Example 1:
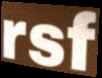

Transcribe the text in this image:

rsf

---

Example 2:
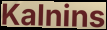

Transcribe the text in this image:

Kalnins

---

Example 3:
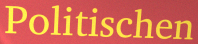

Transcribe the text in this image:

Politischen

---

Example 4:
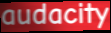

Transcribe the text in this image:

audacity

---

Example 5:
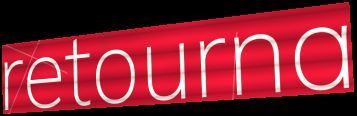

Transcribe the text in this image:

retourna